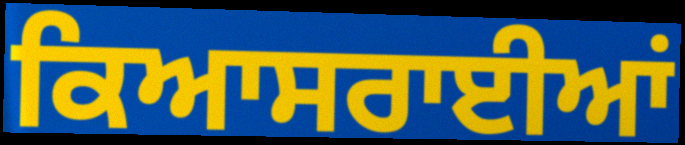
ਕਿਆਸਰਾਈਆਂ